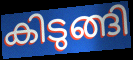
കിടുങ്ങി